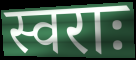
स्वराः